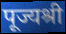
पूज्यश्री